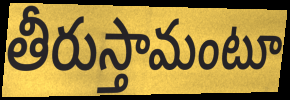
తీరుస్తామంటూ